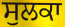
ਸੁਲਕਾ